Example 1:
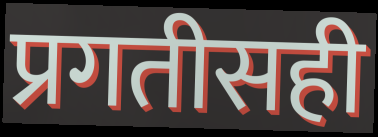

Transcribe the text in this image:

प्रगतीसही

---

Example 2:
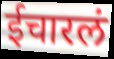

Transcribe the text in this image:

ईचारलं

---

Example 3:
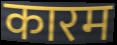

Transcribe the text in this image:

कारम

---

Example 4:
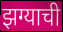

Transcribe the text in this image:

झग्याची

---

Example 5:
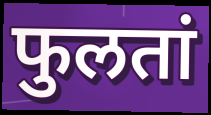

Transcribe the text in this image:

फुलतां